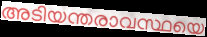
അടിയന്തരാവസ്ഥയെ